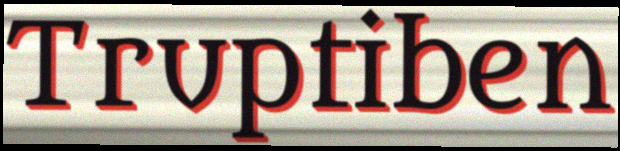
Truptiben